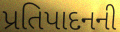
પ્રતિપાદનની